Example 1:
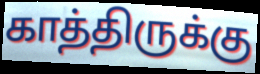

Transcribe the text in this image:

காத்திருக்கு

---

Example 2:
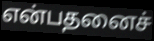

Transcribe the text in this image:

என்பதனைச்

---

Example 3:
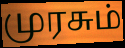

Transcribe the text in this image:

முரசும்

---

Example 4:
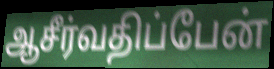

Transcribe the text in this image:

ஆசீர்வதிப்பேன்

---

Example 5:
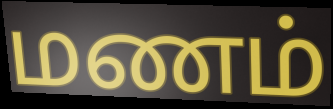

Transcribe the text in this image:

மணம்